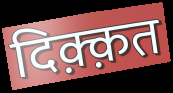
दिक़्क़त